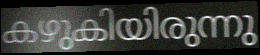
കഴുകിയിരുന്നു